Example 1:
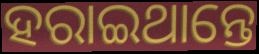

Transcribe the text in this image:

ହରାଇଥାନ୍ତେ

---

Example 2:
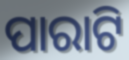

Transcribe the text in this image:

ପାରାଟି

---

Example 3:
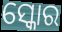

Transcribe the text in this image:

ସ୍କୋର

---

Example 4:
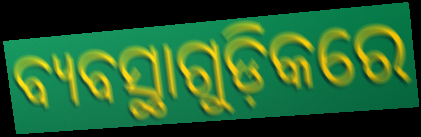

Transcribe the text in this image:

ବ୍ୟବସ୍ଥାଗୁଡ଼ିକରେ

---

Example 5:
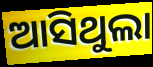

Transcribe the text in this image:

ଆସିଥୁଲା